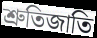
শ্রুতিজাতি